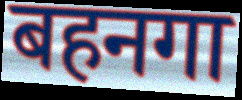
बहनगा